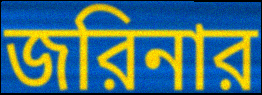
জরিনার